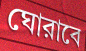
ঘোরাবে